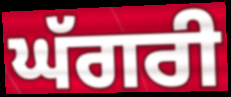
ਘੱਗਰੀ